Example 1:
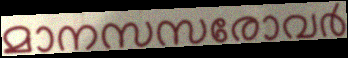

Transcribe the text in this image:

മാനസസരോവർ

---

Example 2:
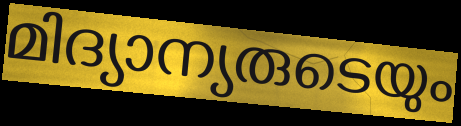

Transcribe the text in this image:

മിദ്യാന്യരുടെയും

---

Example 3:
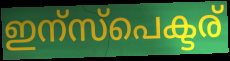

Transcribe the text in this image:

ഇന്സ്പെക്ടര്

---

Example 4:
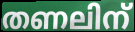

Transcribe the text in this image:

തണലിന്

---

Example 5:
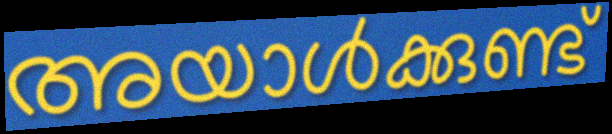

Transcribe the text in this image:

അയാൾക്കുണ്ട്